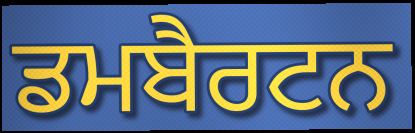
ਡਮਬੈਰਟਨ